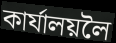
কাৰ্যালয়লৈ